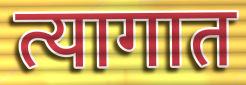
त्यागात